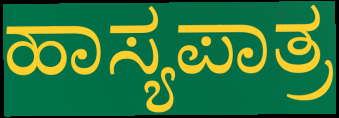
ಹಾಸ್ಯಪಾತ್ರ